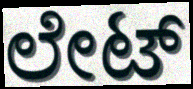
ಲೇಟ್